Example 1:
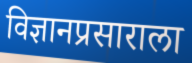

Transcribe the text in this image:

विज्ञानप्रसाराला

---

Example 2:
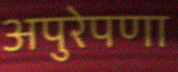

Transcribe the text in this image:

अपुरेपणा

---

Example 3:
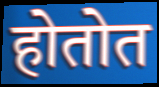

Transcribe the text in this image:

होतोत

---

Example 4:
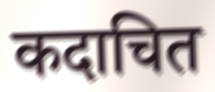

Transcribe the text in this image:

कदाचित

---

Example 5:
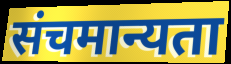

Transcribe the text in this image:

संचमान्यता